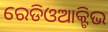
ରେଡିଓଆକ୍ଟିଭ